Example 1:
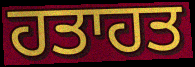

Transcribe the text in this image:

ਹਤਾਹਤ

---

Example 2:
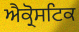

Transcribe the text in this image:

ਐਕ੍ਰੋਸਟਿਕ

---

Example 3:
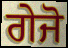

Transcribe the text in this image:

ਗੇਜੋ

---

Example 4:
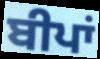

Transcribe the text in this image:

ਬੀਪਾਂ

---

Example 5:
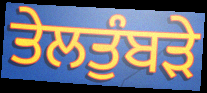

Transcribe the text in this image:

ਤੇਲਤੁੰਬੜੇ